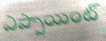
ఎప్పాయింట్